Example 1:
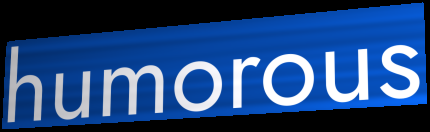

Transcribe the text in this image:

humorous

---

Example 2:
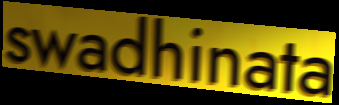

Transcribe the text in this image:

swadhinata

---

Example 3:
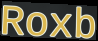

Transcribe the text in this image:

Roxb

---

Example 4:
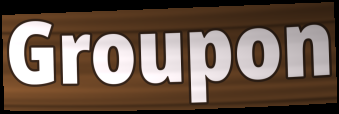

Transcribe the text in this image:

Groupon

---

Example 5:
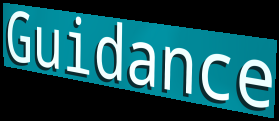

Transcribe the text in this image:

Guidance